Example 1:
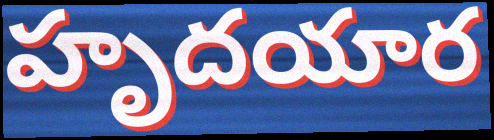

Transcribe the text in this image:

హృదయార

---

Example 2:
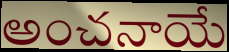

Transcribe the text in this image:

అంచనాయే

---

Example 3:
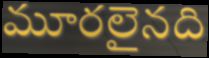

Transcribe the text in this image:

మూరలైనది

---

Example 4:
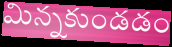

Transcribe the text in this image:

మిన్నకుండడం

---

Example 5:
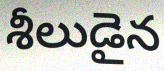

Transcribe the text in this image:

శీలుడైన